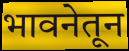
भावनेतून